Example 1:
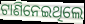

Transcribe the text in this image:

ଟାଣିନେଇଥିଲେ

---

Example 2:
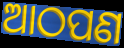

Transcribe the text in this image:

ଆଠପଣ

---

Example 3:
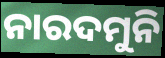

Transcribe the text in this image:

ନାରଦମୁନି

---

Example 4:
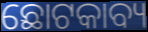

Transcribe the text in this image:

ଛୋଟକାବ୍ୟ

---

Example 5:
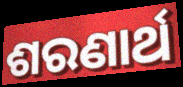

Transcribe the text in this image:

ଶରଣାର୍ଥ